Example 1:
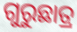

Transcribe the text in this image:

ଗୁରୁଛାତ୍ର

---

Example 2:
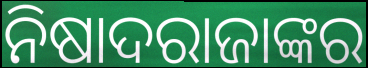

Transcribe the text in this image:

ନିଷାଦରାଜାଙ୍କର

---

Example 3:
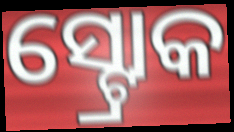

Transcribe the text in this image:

ସ୍ଟ୍ରୋକ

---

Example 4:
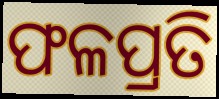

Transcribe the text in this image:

ଫଳପ୍ରତି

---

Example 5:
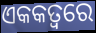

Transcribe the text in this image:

ଏକକତ୍ୱରେ